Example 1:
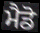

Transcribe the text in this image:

ਮੈਡੋ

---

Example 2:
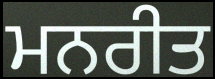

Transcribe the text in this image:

ਮਨਰੀਤ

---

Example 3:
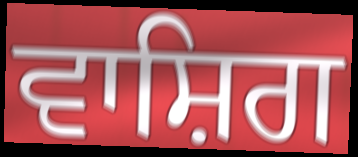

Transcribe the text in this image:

ਵਾਸ਼ਿਗ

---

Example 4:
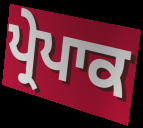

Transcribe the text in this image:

ਪ੍ਰੇਪਾਕ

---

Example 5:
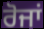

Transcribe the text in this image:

ਰੋਜਾਂ